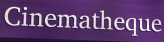
Cinematheque